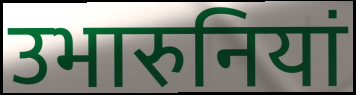
उभारुनियां